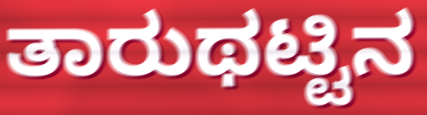
ತಾರುಥಟ್ಟಿನ